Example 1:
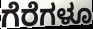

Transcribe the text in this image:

ಗೆರೆಗಳೂ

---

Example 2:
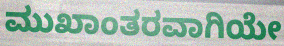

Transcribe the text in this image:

ಮುಖಾಂತರವಾಗಿಯೇ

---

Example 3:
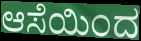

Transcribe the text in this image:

ಆಸೆಯಿಂದ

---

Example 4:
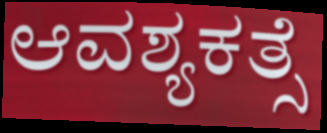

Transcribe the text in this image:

ಆವಶ್ಯಕತ್ಸೆ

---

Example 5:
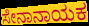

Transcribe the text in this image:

ಸೇನಾನಾಯಕ